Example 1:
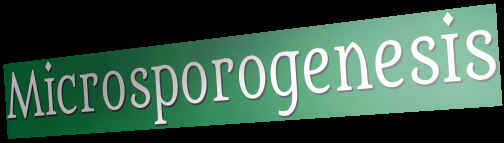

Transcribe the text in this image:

Microsporogenesis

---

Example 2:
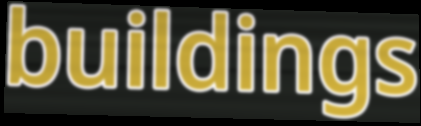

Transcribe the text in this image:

buildings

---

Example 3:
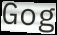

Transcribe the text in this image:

Gog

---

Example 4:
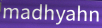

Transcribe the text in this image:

madhyahn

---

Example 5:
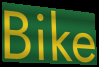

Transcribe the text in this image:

Bike